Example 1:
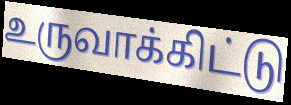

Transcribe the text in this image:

உருவாக்கிட்டு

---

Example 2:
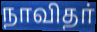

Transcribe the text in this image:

நாவிதர்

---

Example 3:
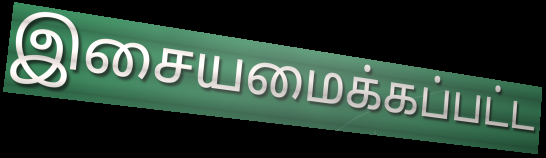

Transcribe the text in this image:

இசையமைக்கப்பட்ட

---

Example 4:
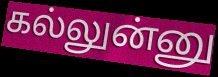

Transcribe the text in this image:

கல்லுன்னு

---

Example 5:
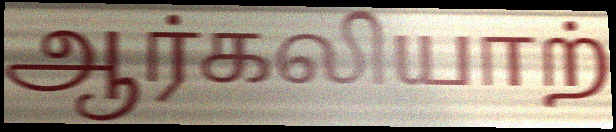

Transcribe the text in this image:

ஆர்கலியாற்